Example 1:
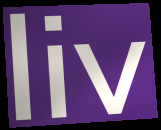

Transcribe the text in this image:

liv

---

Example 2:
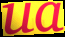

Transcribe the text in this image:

ua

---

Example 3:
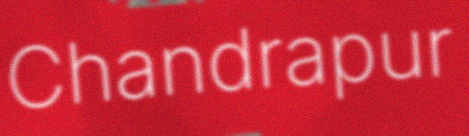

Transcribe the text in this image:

Chandrapur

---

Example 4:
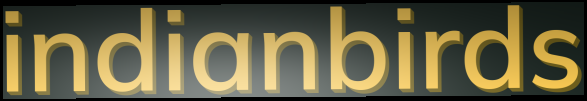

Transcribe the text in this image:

indianbirds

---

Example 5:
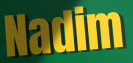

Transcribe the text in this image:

Nadim